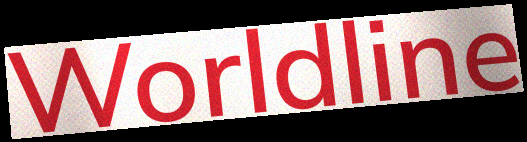
Worldline